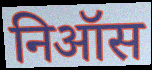
निऑस